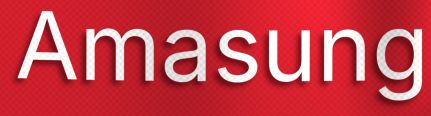
Amasung